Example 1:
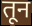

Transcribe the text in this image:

तून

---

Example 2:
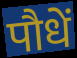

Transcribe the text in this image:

पौधें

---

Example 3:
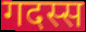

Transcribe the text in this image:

गदस्स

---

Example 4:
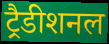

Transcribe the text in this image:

ट्रैडीशनल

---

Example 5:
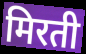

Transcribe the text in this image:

मिरती